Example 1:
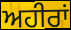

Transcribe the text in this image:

ਅਹੀਰਾਂ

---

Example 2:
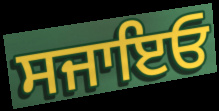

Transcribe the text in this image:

ਸਜਾਇਓ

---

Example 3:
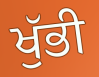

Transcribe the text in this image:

ਖੁੱਭੀ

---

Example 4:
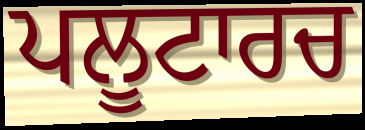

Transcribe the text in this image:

ਪਲੂਟਾਰਚ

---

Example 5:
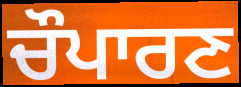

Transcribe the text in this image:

ਚੌਪਾਰਣ